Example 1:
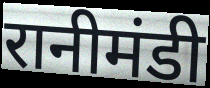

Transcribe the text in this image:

रानीमंडी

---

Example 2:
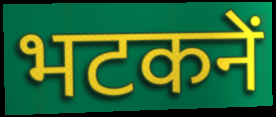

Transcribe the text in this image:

भटकनें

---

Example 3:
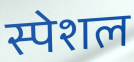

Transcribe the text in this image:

स्पेशल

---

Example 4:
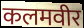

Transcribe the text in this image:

कलमवीर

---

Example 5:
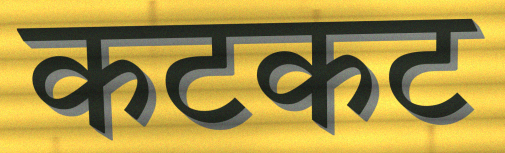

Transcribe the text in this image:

कटकट